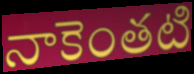
నాకెంతటి